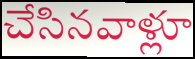
చేసినవాళ్లూ